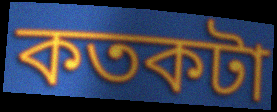
কতকটা